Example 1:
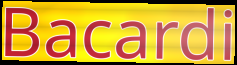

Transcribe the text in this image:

Bacardi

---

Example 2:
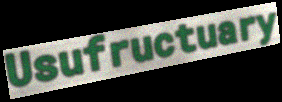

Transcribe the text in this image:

Usufructuary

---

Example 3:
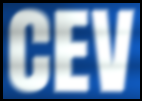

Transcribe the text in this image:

CEV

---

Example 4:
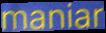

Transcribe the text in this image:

maniar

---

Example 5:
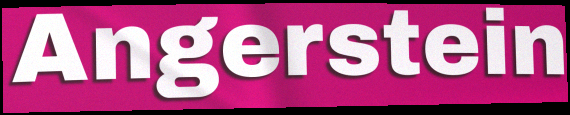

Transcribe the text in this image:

Angerstein